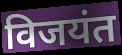
विजयंत